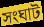
সংঘাট